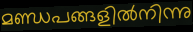
മണ്ഡപങ്ങളിൽനിന്നു